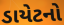
ડાયેટનો